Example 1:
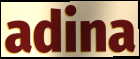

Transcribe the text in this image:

adina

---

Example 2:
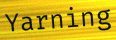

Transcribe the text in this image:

Yarning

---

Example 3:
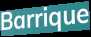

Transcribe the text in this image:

Barrique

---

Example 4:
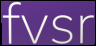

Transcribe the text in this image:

fvsr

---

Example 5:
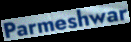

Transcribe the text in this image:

Parmeshwar